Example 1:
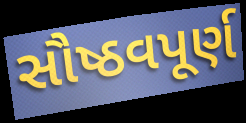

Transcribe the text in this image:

સૌષ્ઠવપૂર્ણ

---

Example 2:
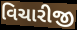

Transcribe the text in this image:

વિચારીજી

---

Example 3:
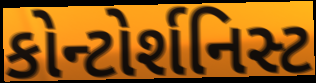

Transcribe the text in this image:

કોન્ટોર્શનિસ્ટ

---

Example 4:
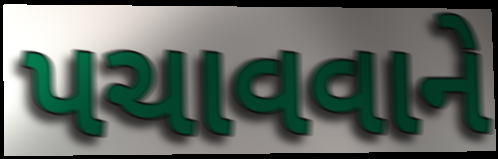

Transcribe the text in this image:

પચાવવાને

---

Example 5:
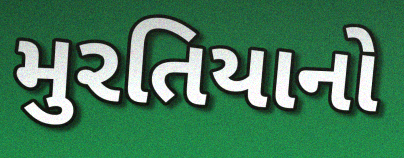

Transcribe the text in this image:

મુરતિયાનો